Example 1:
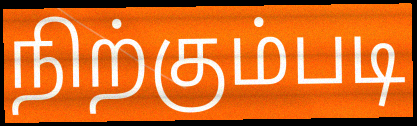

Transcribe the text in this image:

நிற்கும்படி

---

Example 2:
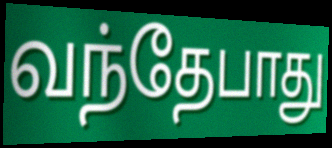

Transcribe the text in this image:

வந்தேபாது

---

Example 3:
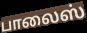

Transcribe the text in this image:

பாலைஸ்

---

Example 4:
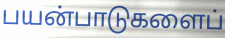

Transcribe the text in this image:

பயன்பாடுகளைப்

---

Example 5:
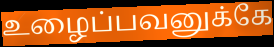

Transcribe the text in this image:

உழைப்பவனுக்கே